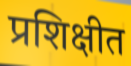
प्रशिक्षीत